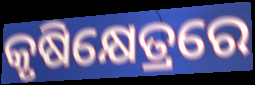
କୃଷିକ୍ଷେତ୍ରରେ